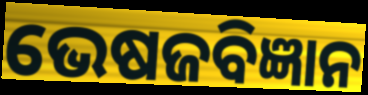
ଭେଷଜବିଜ୍ଞାନ